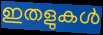
ഇതളുകൾ